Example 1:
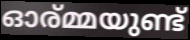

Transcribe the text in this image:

ഓര്മ്മയുണ്ട്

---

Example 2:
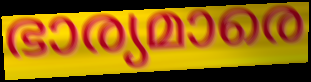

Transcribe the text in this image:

ഭാര്യമാരെ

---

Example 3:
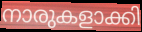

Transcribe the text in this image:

നാരുകളാക്കി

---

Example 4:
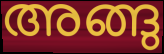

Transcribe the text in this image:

അങ്ങു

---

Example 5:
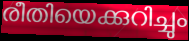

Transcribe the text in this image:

രീതിയെക്കുറിച്ചും